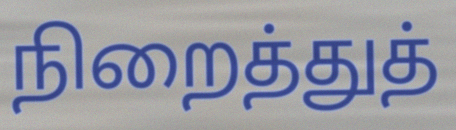
நிறைத்துத்